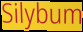
Silybum